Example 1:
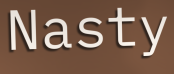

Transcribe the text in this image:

Nasty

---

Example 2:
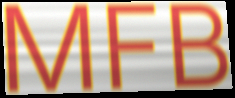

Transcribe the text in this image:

MFB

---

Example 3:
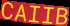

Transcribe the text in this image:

CAIIB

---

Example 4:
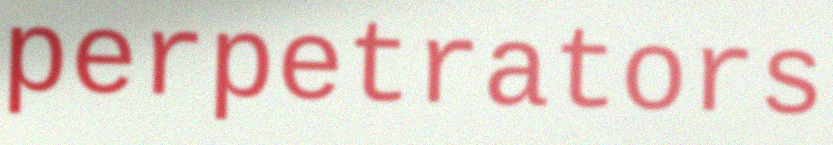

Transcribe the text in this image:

perpetrators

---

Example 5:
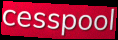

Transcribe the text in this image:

cesspool